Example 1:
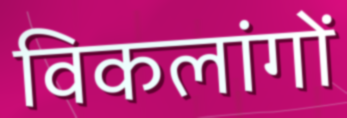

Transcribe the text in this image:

विकलांगों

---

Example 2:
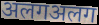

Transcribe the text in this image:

अलगअलग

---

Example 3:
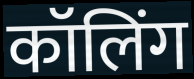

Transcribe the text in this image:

कॉलिंग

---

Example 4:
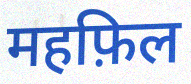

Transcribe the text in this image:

महफ़िल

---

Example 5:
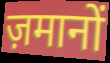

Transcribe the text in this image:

ज़मानों